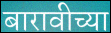
बारावीच्या